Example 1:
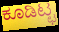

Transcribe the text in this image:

ಕೂಡಿಟ್ಟ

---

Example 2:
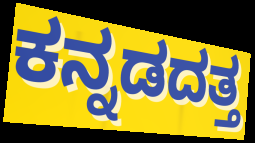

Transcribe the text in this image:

ಕನ್ನಡದತ್ತ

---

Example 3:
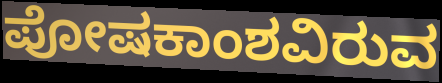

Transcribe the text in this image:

ಪೋಷಕಾಂಶವಿರುವ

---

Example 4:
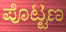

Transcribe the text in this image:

ಪೊಟ್ಟಣ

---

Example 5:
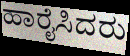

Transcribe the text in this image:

ಹಾರೈಸಿದರು